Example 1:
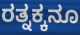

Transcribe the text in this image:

ರತ್ನಕ್ಕನೂ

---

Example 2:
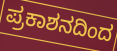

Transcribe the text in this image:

ಪ್ರಕಾಶನದಿಂದ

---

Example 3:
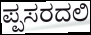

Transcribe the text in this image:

ಪ್ಪಸರದಲಿ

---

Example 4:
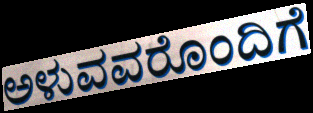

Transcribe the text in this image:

ಅಳುವವರೊಂದಿಗೆ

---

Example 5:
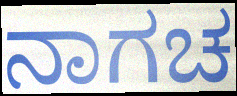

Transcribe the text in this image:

ನಾಗಚ